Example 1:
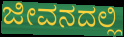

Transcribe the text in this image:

ಜೀವನದಲ್ಲಿ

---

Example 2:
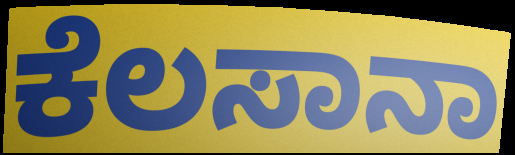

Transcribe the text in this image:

ಕೆಲಸಾನಾ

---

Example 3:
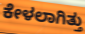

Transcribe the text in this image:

ಕೇಳಲಾಗಿತ್ತು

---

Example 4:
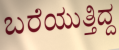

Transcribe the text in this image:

ಬರೆಯುತ್ತಿದ್ದ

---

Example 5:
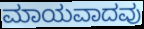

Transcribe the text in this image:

ಮಾಯವಾದವು